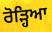
ਰੋੜ੍ਹਿਆ